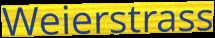
Weierstrass